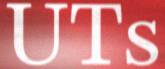
UTs